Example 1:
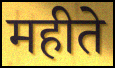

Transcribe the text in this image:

महीते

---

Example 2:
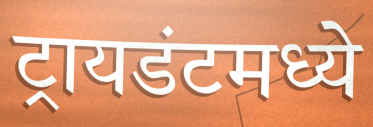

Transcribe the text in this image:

ट्रायडंटमध्ये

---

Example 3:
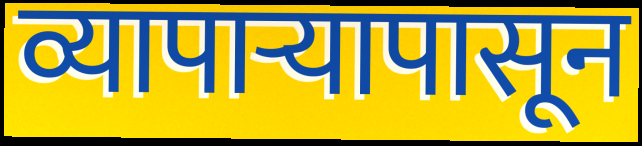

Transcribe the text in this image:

व्यापाऱ्यापासून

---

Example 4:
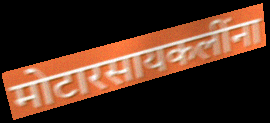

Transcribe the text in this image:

मोटारसायकलींना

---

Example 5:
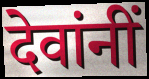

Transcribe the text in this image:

देवांनीं